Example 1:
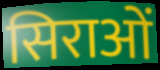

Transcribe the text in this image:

सिराओं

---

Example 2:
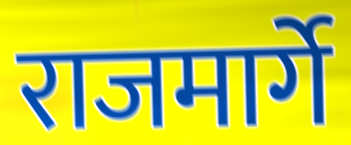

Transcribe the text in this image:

राजमार्गे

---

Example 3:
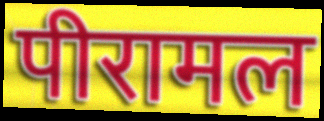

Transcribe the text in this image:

पीरामल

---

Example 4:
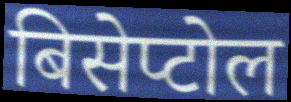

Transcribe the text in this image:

बिसेप्टोल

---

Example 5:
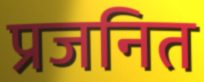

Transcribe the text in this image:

प्रजनित